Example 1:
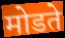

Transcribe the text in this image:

मोडते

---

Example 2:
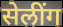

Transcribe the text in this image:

सेलींग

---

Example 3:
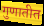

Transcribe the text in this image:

गुणातीत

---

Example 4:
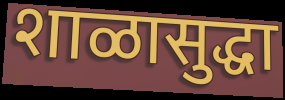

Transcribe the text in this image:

शाळासुद्धा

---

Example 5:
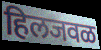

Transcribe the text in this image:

हिलजवळ